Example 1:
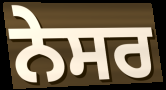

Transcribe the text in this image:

ਨੇਸਰ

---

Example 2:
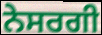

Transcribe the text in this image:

ਨੇਸਰਗੀ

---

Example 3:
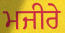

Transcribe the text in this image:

ਮਜੀਰੇ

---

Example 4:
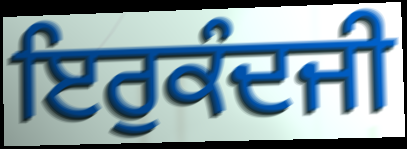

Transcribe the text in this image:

ਇਰੁਕੰਦਜੀ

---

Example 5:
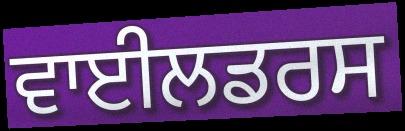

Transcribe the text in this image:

ਵਾਈਲਡਰਸ